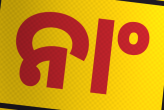
ନାଂ